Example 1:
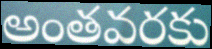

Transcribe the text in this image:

అంతవరకు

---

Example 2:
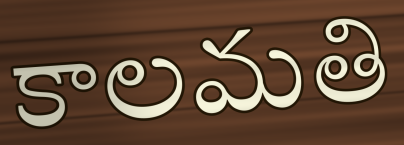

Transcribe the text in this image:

కాలమతి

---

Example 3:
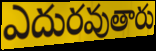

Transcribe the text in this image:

ఎదురవుతారు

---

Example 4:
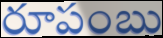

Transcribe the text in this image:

రూపంబు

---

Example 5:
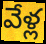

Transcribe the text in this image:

వేళ్ల